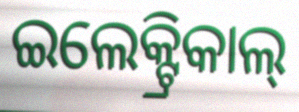
ଇଲେକ୍ଟ୍ରିକାଲ୍